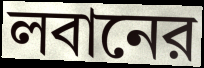
লবানের